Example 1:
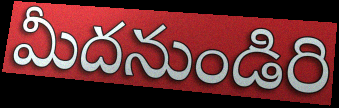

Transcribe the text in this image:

మీదనుండిరి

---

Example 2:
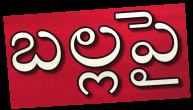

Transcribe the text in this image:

బల్లపై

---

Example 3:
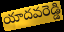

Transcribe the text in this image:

యాదవరెడ్డి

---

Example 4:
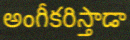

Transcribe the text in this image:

అంగీకరిస్తాడా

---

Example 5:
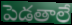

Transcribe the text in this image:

పెడతాలే